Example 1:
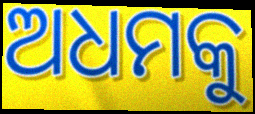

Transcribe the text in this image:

ଅଧମକୁ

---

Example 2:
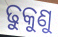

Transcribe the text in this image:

ଢୁକୁଣୁ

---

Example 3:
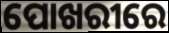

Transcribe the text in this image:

ପୋଖରୀରେ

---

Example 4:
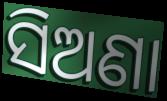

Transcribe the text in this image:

ସିଅଣା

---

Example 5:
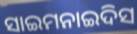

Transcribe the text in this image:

ସାଇମନାଇଦିସ